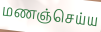
மணஞ்செய்ய